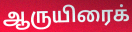
ஆருயிரைக்